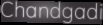
Chandgadi